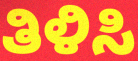
ತಿಳಿಸಿ